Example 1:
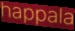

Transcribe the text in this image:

happala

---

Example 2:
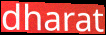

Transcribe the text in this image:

dharat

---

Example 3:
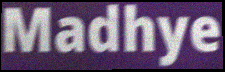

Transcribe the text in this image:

Madhye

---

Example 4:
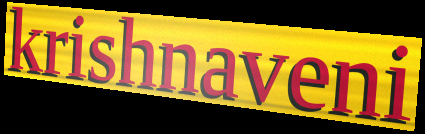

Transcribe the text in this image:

krishnaveni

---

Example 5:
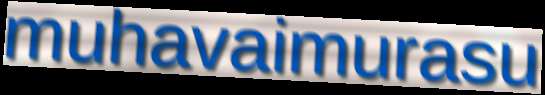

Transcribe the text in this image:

muhavaimurasu